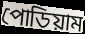
পোডিয়াম